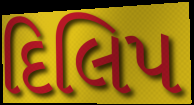
દિલિપ